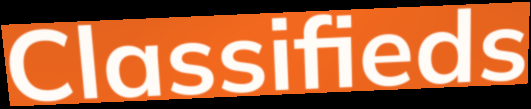
Classifieds